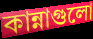
কান্নাগুলো